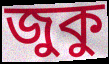
জুকু